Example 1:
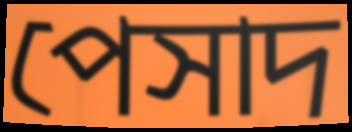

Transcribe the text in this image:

পেসাদ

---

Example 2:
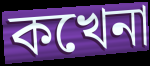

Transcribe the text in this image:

কখেনা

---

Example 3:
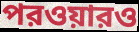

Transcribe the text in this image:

পরওয়ারও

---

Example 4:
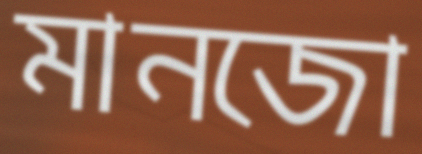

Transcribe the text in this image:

মানজো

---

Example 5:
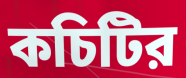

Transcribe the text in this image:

কচিটির